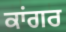
ਕਾਂਗਰ